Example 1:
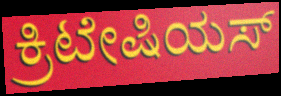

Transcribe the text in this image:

ಕ್ರಿಟೇಷಿಯಸ್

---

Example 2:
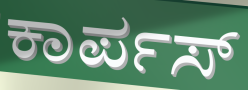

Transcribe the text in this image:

ಕಾರ್ಪಸ್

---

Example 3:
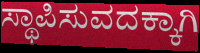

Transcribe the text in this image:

ಸ್ಥಾಪಿಸುವದಕ್ಕಾಗಿ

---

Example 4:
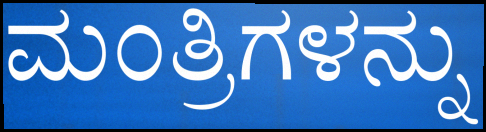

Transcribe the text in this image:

ಮಂತ್ರಿಗಳನ್ನು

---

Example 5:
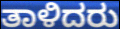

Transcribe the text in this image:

ತಾಳಿದರು